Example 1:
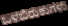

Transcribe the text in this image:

ಒಳಬಿರುಕುಗಳು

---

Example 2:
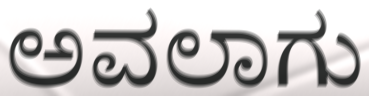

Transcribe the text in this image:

ಅವಲಾಗು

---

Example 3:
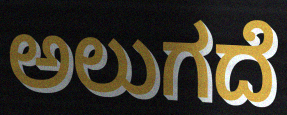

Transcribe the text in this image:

ಅಲುಗದೆ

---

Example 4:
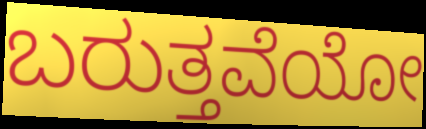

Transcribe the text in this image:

ಬರುತ್ತವೆಯೋ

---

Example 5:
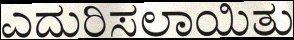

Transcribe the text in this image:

ಎದುರಿಸಲಾಯಿತು